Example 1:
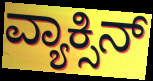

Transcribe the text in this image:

ವ್ಯಾಕ್ಸಿನ್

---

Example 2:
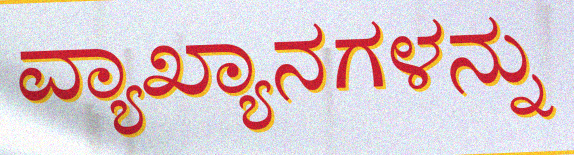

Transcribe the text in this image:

ವ್ಯಾಖ್ಯಾನಗಳನ್ನು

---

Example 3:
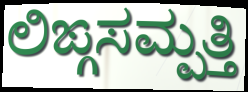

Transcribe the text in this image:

ಲಿಙ್ಗಸಮ್ಪತ್ತಿ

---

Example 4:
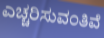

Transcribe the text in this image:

ಎಚ್ಚರಿಸುವಂತಿವೆ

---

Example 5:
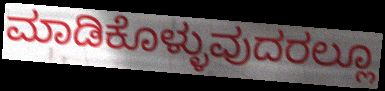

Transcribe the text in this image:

ಮಾಡಿಕೊಳ್ಳುವುದರಲ್ಲೂ